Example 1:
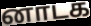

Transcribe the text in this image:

னாடக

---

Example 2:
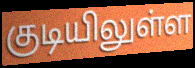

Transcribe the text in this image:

குடியிலுள்ள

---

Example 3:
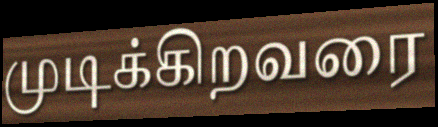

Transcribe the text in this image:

முடிக்கிறவரை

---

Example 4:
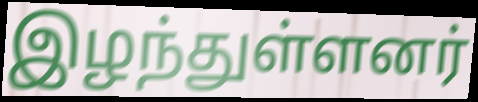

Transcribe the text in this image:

இழந்துள்ளனர்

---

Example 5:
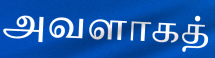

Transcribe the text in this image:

அவளாகத்